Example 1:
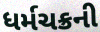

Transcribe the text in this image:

ધર્મચક્રની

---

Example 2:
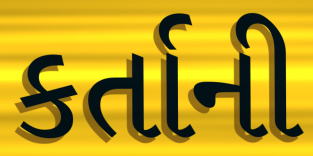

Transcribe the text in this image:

કર્તાની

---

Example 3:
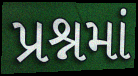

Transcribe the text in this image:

પ્રશ્નમાં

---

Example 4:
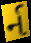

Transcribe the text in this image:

ર્ન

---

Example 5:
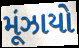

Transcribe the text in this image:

મૂંઝાયો